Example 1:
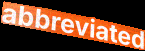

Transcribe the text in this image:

abbreviated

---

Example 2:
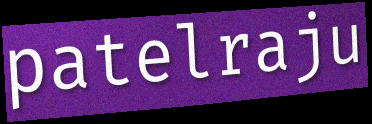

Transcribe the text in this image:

patelraju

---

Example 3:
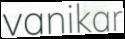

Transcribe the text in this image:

vanikar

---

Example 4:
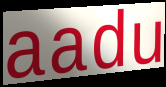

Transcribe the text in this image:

aadu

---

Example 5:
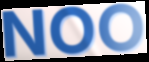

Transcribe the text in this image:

NOO